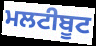
ਮਲਟੀਬੂਟ